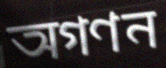
অগণন